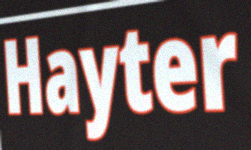
Hayter